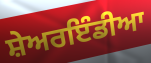
ਸ਼ੇਅਰਇੰਡੀਆ